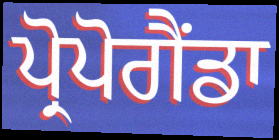
ਪ੍ਰੋਪੋਗੈਂਡਾ